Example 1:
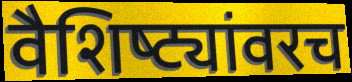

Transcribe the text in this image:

वैशिष्ट्यांवरच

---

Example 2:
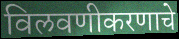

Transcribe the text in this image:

विलवणीकरणाचे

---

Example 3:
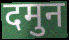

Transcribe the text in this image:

दमुन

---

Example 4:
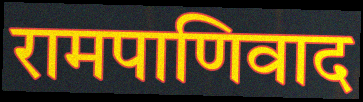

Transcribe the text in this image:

रामपाणिवाद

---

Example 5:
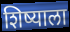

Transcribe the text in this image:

शिष्याला